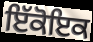
ਇੱਕੋਇਕ